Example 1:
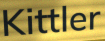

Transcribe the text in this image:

Kittler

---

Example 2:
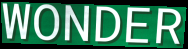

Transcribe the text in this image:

WONDER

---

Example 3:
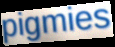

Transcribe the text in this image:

pigmies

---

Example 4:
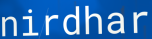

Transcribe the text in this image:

nirdhar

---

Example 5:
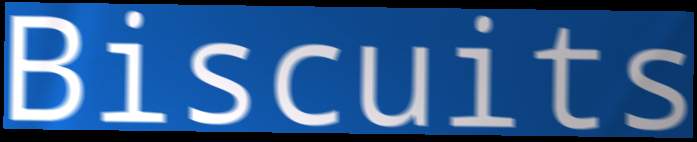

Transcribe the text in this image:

Biscuits